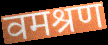
वमश्रण